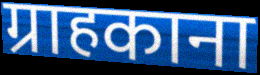
ग्राहकाना